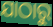
ଯାଠାରୁ